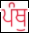
ਪੰਥੁ